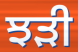
ਝੜੀ